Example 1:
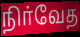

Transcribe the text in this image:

நிர்வேத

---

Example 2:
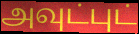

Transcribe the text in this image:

அவுட்புட்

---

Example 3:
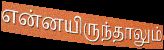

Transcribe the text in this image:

என்னயிருந்தாலும்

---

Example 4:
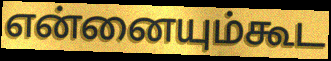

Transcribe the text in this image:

என்னையும்கூட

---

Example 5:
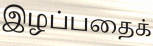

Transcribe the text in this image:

இழப்பதைக்